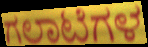
ಗಲಾಟೆಗಳ